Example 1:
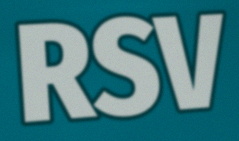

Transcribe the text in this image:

RSV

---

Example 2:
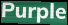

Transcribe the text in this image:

Purple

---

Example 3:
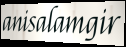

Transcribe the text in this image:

anisalamgir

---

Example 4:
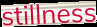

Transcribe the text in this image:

stillness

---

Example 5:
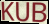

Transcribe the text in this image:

KUB